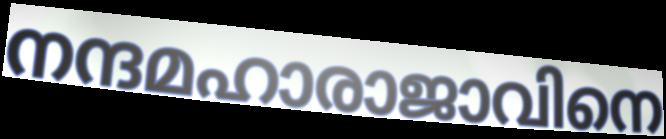
നന്ദമഹാരാജാവിനെ